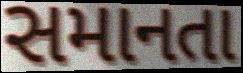
સમાનતા